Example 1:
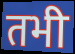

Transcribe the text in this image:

तभी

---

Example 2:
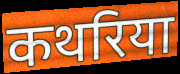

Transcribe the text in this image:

कथरिया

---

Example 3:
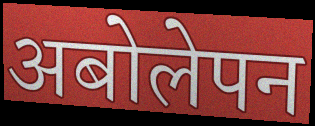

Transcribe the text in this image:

अबोलेपन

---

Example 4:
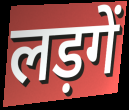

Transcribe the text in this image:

लड़गें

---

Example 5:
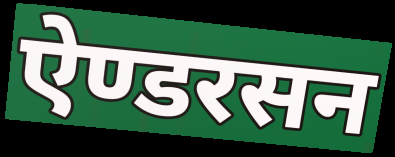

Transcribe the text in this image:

ऐण्डरसन